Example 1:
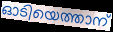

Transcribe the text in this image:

ഓടിയെത്താന്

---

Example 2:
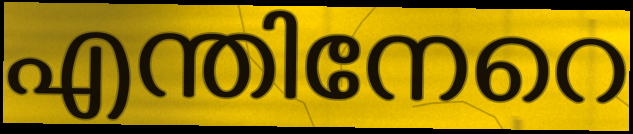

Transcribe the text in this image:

എന്തിനേറെ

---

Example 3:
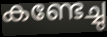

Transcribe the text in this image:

കണ്ടേച്ചു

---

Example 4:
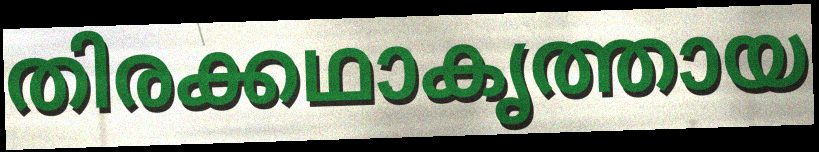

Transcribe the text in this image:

തിരക്കഥാകൃത്തായ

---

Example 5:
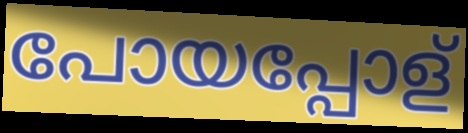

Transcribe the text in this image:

പോയപ്പോള്